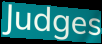
Judges